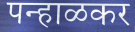
पन्हाळकर